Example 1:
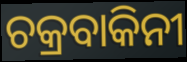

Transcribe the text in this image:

ଚକ୍ରବାକିନୀ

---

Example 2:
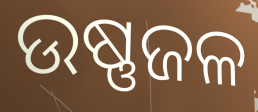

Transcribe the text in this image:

ଉଷ୍ଣଜଳ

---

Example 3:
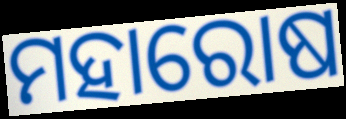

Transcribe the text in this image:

ମହାରୋଷ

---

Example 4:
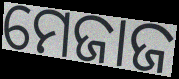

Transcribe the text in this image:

ମେଜାଜ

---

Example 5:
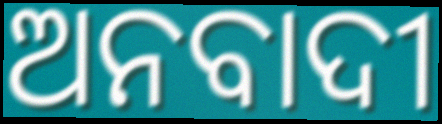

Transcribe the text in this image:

ଅନବାଦୀ